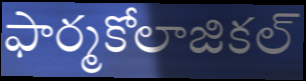
ఫార్మకోలాజికల్